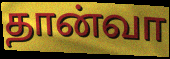
தான்வா